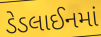
ડેડલાઈનમાં